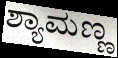
ಶ್ಯಾಮಣ್ಣ